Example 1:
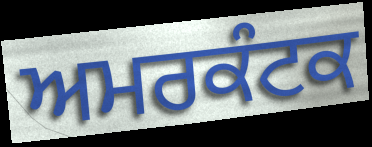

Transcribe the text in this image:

ਅਮਰਕੰਟਕ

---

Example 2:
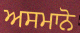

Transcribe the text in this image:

ਅਸਮਾਨੋ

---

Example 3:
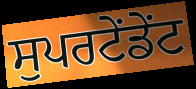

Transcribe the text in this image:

ਸੁਪਰਟੇਂਡੇਂਟ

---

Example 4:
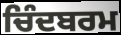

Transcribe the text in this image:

ਚਿੰਦਬਰਮ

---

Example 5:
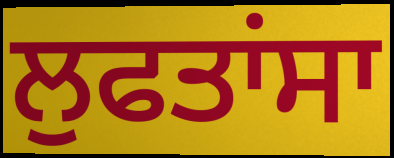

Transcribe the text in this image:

ਲੁਫਤਾਂਸਾ